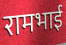
रामभाई